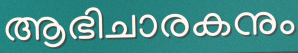
ആഭിചാരകനും